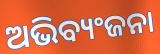
ଅଭିବ୍ୟଂଜନା